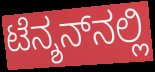
ಟೆನ್ಶನ್‌ನಲ್ಲಿ